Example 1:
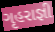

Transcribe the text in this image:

ગૃહરાજ્ઞી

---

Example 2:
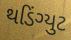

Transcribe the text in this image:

થડિંગ્યુટ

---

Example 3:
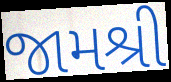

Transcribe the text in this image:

જામશ્રી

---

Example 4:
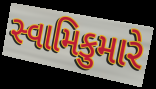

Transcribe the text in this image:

સ્વામિકુમારે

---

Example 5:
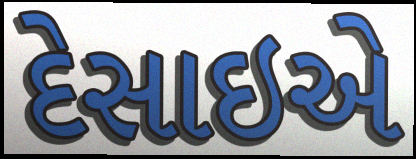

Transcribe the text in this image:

દેસાઇએ